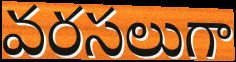
వరసలుగా